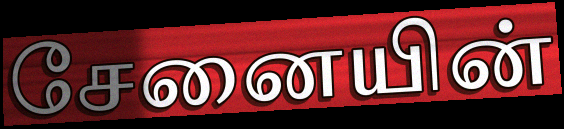
சேனையின்